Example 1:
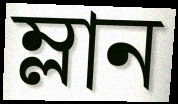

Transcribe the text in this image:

ম্লান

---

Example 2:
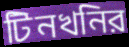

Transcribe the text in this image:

টিনখনির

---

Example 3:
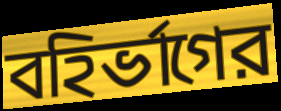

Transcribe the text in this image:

বহির্ভাগের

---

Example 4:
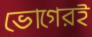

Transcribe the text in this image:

ভোগেরই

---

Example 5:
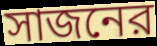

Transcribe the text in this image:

সাজনের